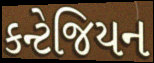
કન્ટેજિયન